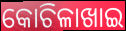
କୋଚିଳାଖାଇ